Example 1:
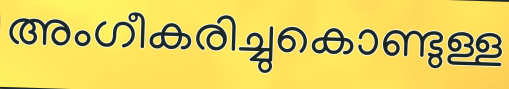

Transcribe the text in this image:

അംഗീകരിച്ചുകൊണ്ടുള്ള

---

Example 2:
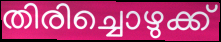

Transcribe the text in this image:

തിരിച്ചൊഴുക്ക്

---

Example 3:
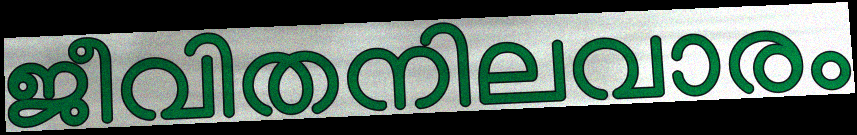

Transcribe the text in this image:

ജീവിതനിലവാരം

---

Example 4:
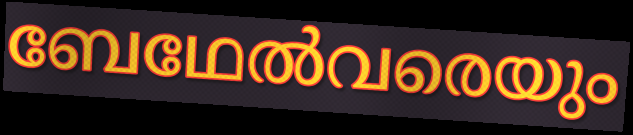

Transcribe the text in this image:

ബേഥേൽവരെയും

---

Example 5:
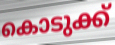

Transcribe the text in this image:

കൊടുക്ക്